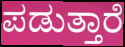
ಪಡುತ್ತಾರೆ